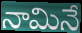
నామినే